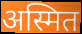
अस्मित